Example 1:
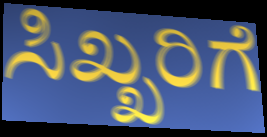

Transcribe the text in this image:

ಸಿಖ್ಖರಿಗೆ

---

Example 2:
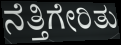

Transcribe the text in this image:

ನೆತ್ತಿಗೇರಿತು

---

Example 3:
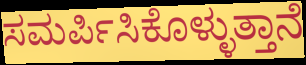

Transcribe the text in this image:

ಸಮರ್ಪಿಸಿಕೊಳ್ಳುತ್ತಾನೆ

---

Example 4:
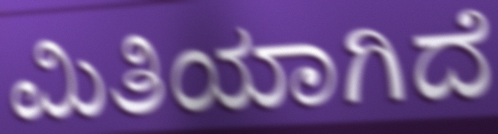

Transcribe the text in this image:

ಮಿತಿಯಾಗಿದೆ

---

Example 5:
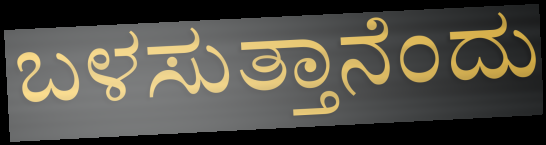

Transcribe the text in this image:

ಬಳಸುತ್ತಾನೆಂದು